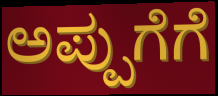
ಅಪ್ಪುಗೆಗೆ